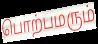
பொற்பமரும்